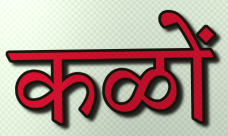
कळों